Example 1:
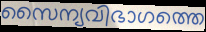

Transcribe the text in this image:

സൈന്യവിഭാഗത്തെ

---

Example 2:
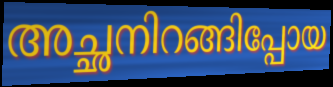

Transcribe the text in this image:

അച്ഛനിറങ്ങിപ്പോയ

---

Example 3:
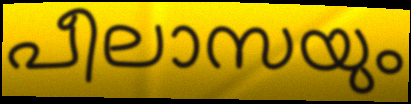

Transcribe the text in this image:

പീലാസയും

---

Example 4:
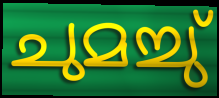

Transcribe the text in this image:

ചുമച്ചു്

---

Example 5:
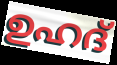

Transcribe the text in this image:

ഉഹദ്